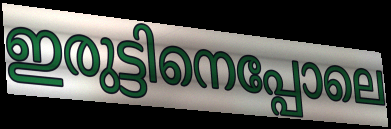
ഇരുട്ടിനെപ്പോലെ